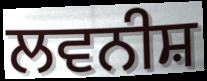
ਲਵਨੀਸ਼